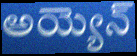
అయ్యెన్